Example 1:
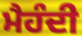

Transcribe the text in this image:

ਮੈਹੰਦੀ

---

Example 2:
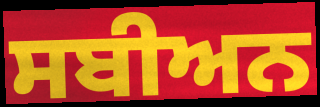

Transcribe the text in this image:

ਸਬੀਅਨ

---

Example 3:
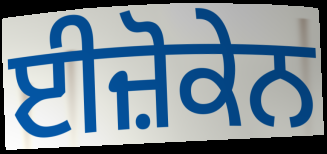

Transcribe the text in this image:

ਈਜ਼ੋਕੇਨ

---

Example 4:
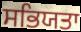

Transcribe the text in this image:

ਸਭਿਯਤਾ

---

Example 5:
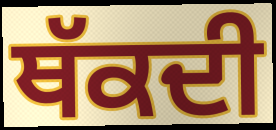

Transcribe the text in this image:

ਥੱਕਦੀ